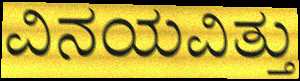
ವಿನಯವಿತ್ತು